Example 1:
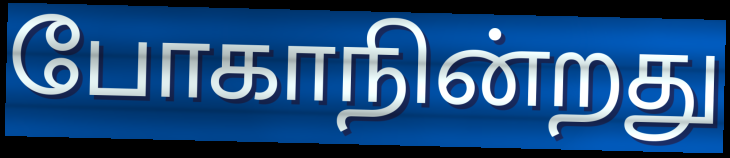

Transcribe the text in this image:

போகாநின்றது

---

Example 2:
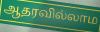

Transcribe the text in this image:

ஆதரவில்லாம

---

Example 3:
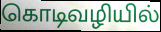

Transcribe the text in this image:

கொடிவழியில்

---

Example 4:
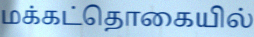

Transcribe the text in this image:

மக்கட்தொகையில்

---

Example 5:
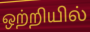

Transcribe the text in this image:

ஒற்றியில்